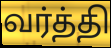
வர்த்தி